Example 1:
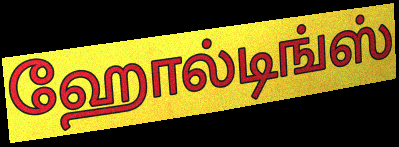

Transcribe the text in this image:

ஹோல்டிங்ஸ்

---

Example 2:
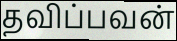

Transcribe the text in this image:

தவிப்பவன்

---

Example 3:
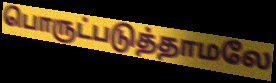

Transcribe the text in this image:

பொருட்படுத்தாமலே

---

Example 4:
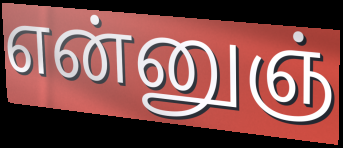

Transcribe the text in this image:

என்னுஞ்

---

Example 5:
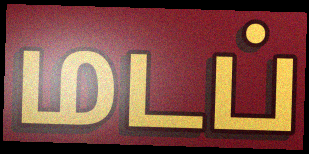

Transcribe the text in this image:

மடப்